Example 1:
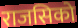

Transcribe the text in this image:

राजसिको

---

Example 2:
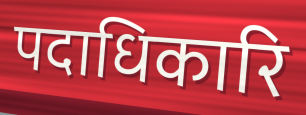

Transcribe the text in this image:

पदाधिकारि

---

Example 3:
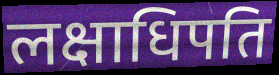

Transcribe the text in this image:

लक्षाधिपति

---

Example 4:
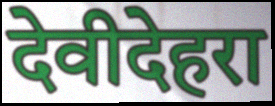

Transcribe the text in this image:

देवीदेहरा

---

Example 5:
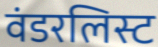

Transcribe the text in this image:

वंडरलिस्ट